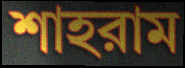
শাহরাম